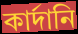
কার্দানি